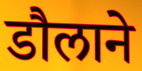
डौलाने